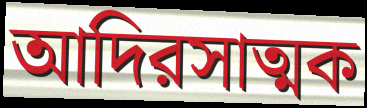
আদিরসাত্মক